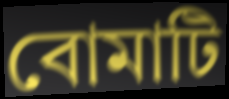
বোমাটি